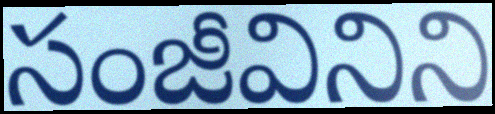
సంజీవినిని